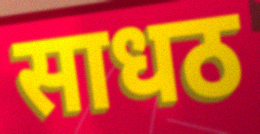
साधठ